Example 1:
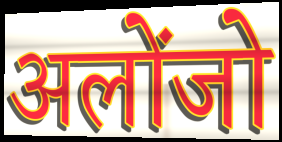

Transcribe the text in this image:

अलोंजो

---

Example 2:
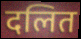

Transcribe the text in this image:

दलित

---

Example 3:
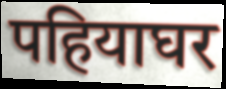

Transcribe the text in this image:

पहियाघर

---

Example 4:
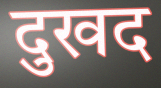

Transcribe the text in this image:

दुखद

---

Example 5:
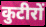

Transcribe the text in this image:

कुटीरों